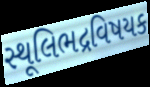
સ્થૂલિભદ્રવિષયક